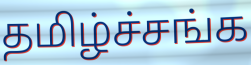
தமிழ்ச்சங்க